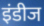
इंडीज